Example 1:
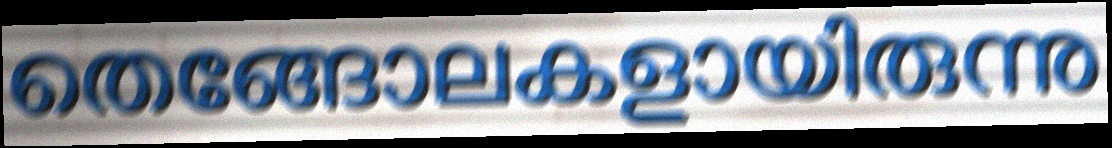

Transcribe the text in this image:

തെങ്ങോലകളായിരുന്നു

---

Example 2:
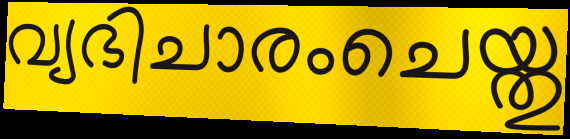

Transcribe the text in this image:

വ്യഭിചാരംചെയ്തു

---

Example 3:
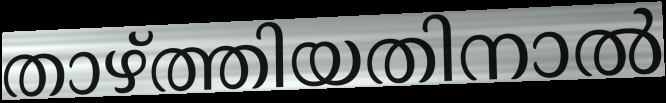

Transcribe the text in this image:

താഴ്ത്തിയതിനാൽ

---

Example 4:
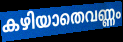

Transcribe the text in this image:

കഴിയാതെവണ്ണം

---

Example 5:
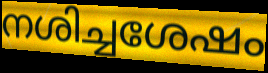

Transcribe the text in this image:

നശിച്ചശേഷം